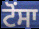
ਟੋਂਸਾ